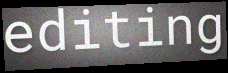
editing